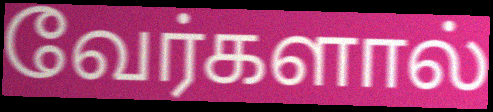
வேர்களால்